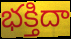
భక్తిదా